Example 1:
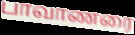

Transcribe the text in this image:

பாவாணரை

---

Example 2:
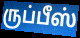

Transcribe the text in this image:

ருப்பீஸ்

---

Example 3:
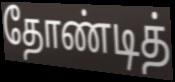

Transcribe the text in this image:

தோண்டித்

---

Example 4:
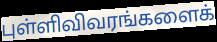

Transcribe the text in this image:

புள்ளிவிவரங்களைக்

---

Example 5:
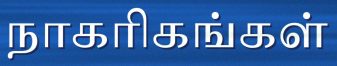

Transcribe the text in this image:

நாகரிகங்கள்